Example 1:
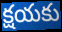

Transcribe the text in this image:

క్షయకు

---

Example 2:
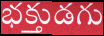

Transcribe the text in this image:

భక్తుడగు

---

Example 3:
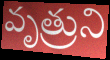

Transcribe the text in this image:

వృత్రుని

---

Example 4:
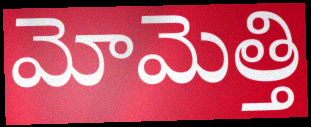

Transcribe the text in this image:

మోమెత్తి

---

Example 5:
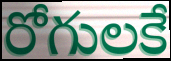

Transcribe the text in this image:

రోగులకే